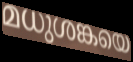
മധുശങ്കയെ